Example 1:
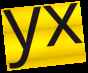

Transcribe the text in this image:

yx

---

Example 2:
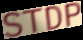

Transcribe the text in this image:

STDP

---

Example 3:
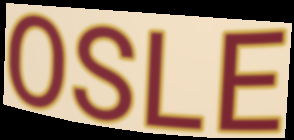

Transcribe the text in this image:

OSLE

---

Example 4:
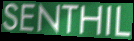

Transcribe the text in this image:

SENTHIL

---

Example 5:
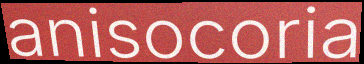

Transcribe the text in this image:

anisocoria